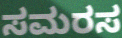
ಸಮರಸ